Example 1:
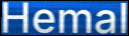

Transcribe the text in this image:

Hemal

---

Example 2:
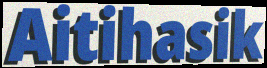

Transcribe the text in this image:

Aitihasik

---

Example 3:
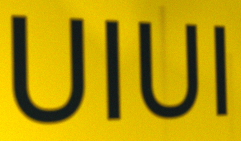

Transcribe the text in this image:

UIUI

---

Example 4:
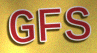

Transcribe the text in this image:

GFS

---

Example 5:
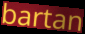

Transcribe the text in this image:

bartan